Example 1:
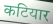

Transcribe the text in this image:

कटियार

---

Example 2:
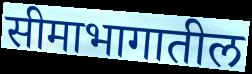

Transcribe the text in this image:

सीमाभागातील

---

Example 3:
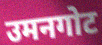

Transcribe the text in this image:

उमनगोट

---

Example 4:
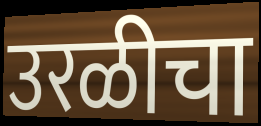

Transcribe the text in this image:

उरळीचा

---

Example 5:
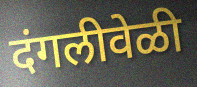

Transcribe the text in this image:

दंगलीवेळी